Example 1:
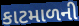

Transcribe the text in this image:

કાટમાળની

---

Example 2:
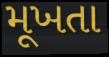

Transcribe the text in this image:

મૂખતા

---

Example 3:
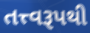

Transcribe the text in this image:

તત્ત્વરૂપથી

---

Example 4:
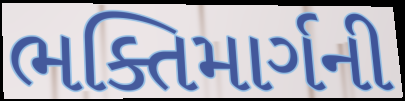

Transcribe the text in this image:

ભક્તિમાર્ગની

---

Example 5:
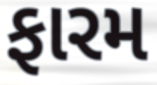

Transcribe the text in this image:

ફારમ